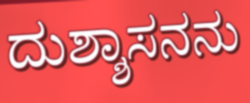
ದುಶ್ಶಾಸನನು